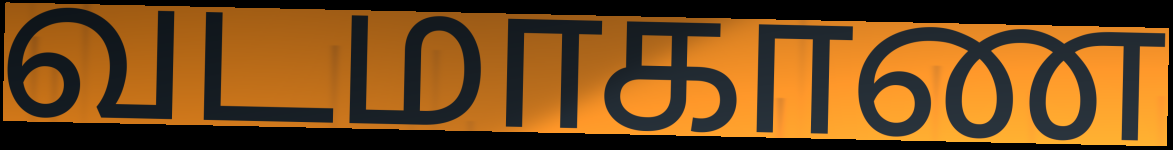
வடமாகாண